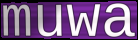
muwa